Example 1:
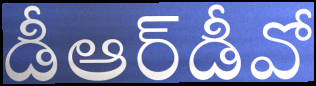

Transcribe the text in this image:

డీఆర్‌డీవో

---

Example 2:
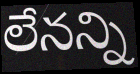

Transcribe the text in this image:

లేనన్ని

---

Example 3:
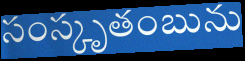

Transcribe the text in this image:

సంస్కృతంబును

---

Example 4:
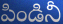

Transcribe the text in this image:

పిండినీ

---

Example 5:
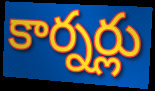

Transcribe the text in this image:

కార్నర్లు